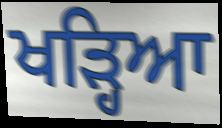
ਖੜ੍ਹਿਆ